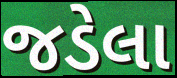
જડેલા